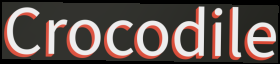
Crocodile